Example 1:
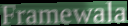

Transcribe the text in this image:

Framewala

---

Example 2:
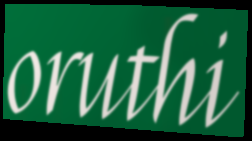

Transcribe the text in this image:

oruthi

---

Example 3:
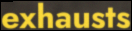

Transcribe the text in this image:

exhausts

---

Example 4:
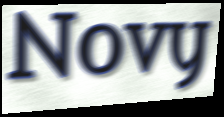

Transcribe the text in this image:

Novy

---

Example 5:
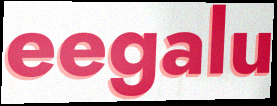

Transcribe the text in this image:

eegalu